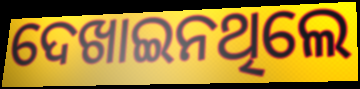
ଦେଖାଇନଥିଲେ